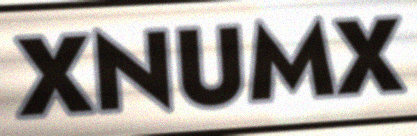
XNUMX